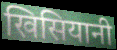
खिसियानी